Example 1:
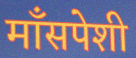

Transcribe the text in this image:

माँसपेशी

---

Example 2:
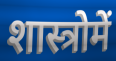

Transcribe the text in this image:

शास्त्रोमें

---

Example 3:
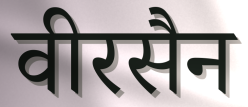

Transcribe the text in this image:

वीरसैन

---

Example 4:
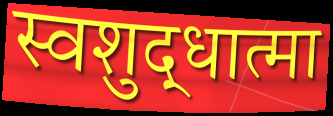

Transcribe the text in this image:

स्वशुद्धात्मा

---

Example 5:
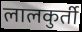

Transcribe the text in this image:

लालकुर्ती